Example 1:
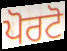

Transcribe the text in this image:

ਪੋਰਟੋ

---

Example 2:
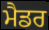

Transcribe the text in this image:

ਮੈਡਰ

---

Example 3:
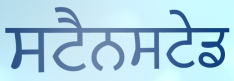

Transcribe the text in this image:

ਸਟੈਨਸਟੇਡ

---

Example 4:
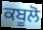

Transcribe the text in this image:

ਕਬੂਲੋ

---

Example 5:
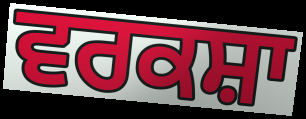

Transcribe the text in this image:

ਵਰਕਸ਼ਾ